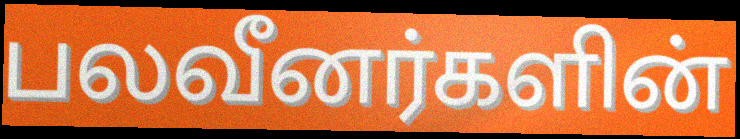
பலவீனர்களின்